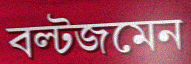
বল্টজমেন